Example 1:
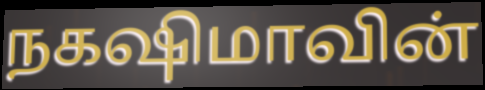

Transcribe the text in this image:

நகஷிமாவின்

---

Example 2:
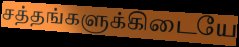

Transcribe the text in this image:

சத்தங்களுக்கிடையே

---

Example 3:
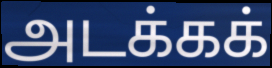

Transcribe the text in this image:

அடக்கக்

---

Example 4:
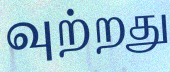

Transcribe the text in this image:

வுற்றது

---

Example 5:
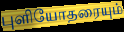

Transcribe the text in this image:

புளியோதரையும்